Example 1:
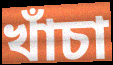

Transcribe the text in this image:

খাঁচা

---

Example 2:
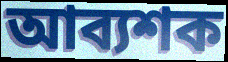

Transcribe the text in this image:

আব্যশক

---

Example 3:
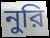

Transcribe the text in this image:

নুরি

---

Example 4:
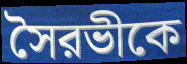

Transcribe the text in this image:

সৈরভীকে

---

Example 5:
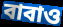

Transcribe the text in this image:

বাবাও